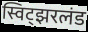
स्विट्झरलंड